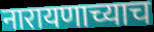
नारायणाच्याच